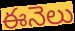
ఈనెలు